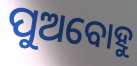
ପୁଅବୋହୁ